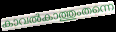
കാവൽകാത്തുംതന്നെ